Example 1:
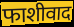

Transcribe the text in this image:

फाशीवाद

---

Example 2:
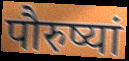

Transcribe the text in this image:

पौरुष्यां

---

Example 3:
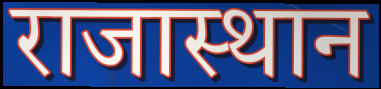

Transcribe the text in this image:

राजास्थान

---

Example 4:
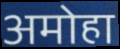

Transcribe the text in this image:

अमोहा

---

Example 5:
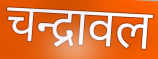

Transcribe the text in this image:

चन्द्रावल